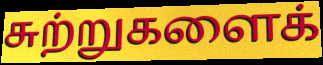
சுற்றுகளைக்